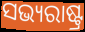
ସଭ୍ୟରାଷ୍ଟ୍ର